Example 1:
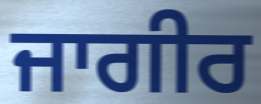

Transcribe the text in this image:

ਜਾਗੀਰ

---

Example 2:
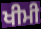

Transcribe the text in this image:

ਖੀਮੀ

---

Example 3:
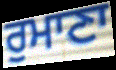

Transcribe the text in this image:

ਰੁਮਾਣਾ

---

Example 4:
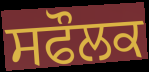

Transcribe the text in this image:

ਸਫੌਲਕ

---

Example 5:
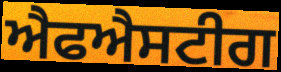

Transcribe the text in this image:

ਐਫਐਸਟੀਗ